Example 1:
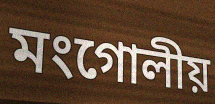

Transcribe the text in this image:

মংগোলীয়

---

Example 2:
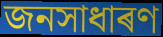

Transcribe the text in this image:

জনসাধাৰণ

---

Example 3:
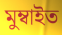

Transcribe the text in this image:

মুম্বাইত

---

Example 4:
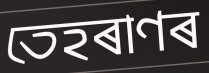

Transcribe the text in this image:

তেহৰাণৰ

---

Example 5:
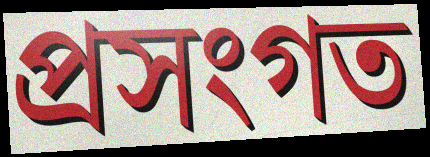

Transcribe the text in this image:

প্ৰসংগত